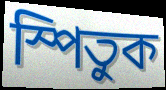
স্পিতুক